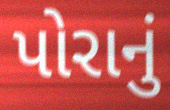
પોરાનું